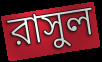
রাসুল